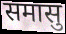
समासु